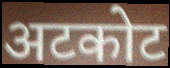
अटकोट